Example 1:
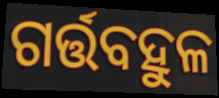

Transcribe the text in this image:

ଗର୍ତ୍ତବହୁଳ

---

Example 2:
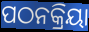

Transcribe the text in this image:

ପଠନକ୍ରିୟା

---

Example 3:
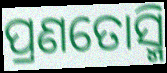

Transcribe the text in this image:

ପ୍ରଣତୋସ୍ମି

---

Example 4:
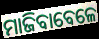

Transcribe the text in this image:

ମାଜିବାବେଳେ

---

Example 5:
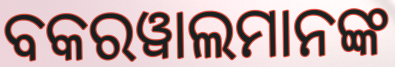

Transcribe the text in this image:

ବକରୱାଲମାନଙ୍କ